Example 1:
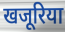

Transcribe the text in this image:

खजूरिया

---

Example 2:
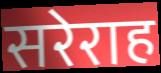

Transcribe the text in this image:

सरेराह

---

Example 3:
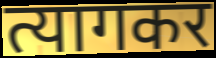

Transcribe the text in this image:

त्यागकर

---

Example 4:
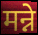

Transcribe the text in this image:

मन्ने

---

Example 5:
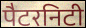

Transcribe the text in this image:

पैटरनिटी